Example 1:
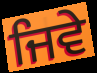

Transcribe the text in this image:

ਜਿਵੇ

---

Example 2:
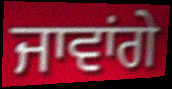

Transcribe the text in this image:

ਜਾਵਾਂਗੇ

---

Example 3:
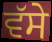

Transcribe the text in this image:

ਵੱਸੇ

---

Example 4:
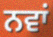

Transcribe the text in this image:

ਨਵਾਂ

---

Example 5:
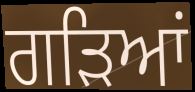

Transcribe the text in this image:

ਗੜਿਆਂ